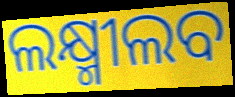
ଲକ୍ଷ୍ମୀଲବ